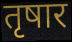
तृषार